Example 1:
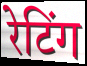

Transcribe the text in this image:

रेटिंग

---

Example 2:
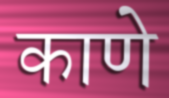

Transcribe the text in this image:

काणे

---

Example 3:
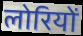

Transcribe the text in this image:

लोरियों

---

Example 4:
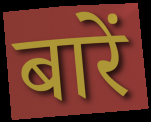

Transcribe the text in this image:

बारें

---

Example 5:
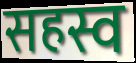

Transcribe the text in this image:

सहस्व